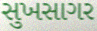
સુખસાગર